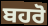
ਬਹਰੋ